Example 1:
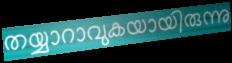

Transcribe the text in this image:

തയ്യാറാവുകയായിരുന്നു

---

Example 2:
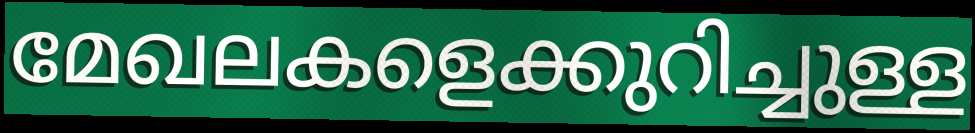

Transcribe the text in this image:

മേഖലകളെക്കുറിച്ചുള്ള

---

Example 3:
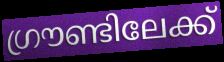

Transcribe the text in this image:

ഗ്രൗണ്ടിലേക്ക്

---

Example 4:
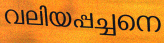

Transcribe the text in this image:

വലിയപ്പച്ചനെ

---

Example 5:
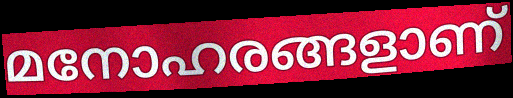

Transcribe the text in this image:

മനോഹരങ്ങളാണ്